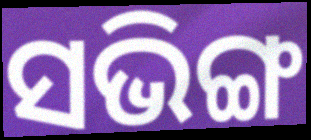
ସଭିଙ୍ଗ